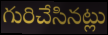
గురిచేసినట్లు